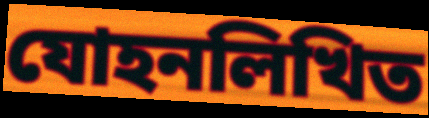
যোহনলিখিত